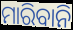
ମାରିବାନି